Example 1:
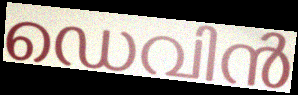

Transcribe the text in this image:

ഡെവിൻ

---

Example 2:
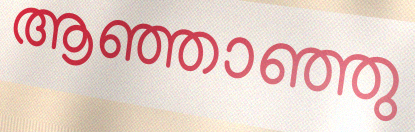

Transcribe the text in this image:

ആഞ്ഞാഞ്ഞു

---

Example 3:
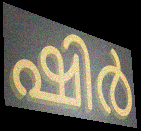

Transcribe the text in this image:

ഷിർ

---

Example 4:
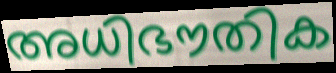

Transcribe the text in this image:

അധിഭൗതിക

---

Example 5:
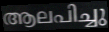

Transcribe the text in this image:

ആലപിച്ചു